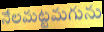
నేలమట్టమగును